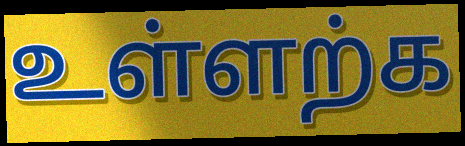
உள்ளற்க